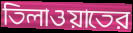
তিলাওয়াতের